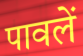
पावलें